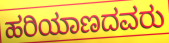
ಹರಿಯಾಣದವರು